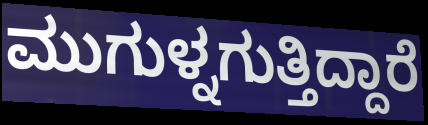
ಮುಗುಳ್ನಗುತ್ತಿದ್ದಾರೆ